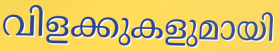
വിളക്കുകളുമായി